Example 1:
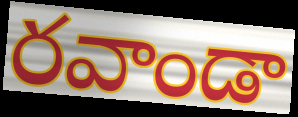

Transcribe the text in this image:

రవాండా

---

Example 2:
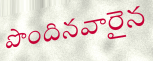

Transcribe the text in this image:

పొందినవారైన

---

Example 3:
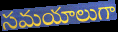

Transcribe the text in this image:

సమయాలుగా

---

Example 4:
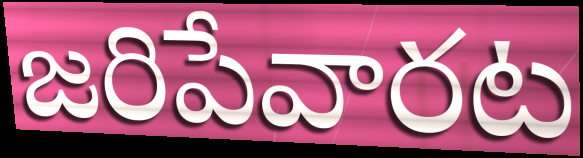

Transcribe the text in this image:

జరిపేవారట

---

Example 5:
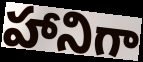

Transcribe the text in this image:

హానిగా